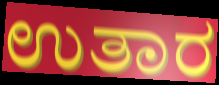
ಉತಾರ